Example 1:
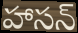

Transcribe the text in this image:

హాసన్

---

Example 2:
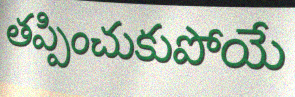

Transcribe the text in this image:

తప్పించుకుపోయే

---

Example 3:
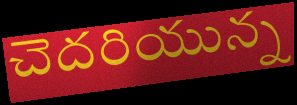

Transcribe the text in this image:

చెదరియున్న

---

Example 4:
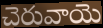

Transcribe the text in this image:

చెరువాయె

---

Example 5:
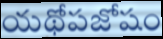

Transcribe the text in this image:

యథోపజోషం